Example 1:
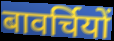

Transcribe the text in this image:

बावर्चियों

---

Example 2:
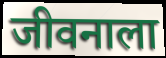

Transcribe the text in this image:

जीवनाला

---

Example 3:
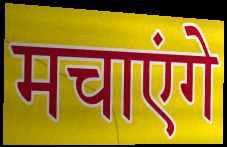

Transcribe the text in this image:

मचाएंगे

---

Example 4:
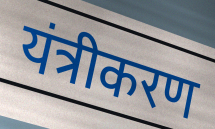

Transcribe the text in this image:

यंत्रीकरण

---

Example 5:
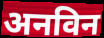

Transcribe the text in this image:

अनविन